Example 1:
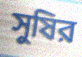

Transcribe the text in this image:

সুষির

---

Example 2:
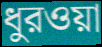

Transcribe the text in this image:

ধুরওয়া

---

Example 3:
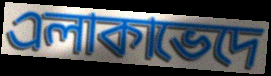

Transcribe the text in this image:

এলাকাভেদে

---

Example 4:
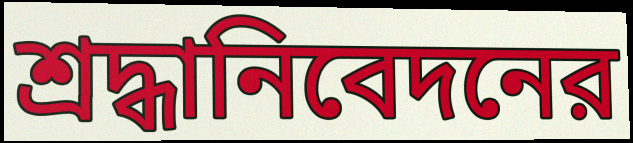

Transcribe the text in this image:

শ্রদ্ধানিবেদনের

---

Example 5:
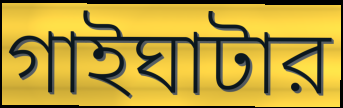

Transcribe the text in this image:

গাইঘাটার